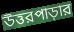
উত্তরপাড়ার